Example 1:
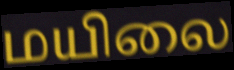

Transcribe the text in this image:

மயிலை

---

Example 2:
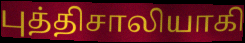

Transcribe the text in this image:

புத்திசாலியாகி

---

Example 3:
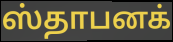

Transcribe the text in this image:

ஸ்தாபனக்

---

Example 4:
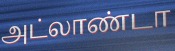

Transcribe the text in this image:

அட்லாண்டா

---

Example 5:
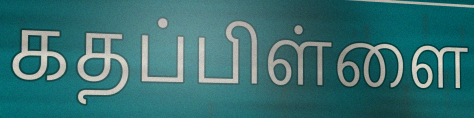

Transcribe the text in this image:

கதப்பிள்ளை